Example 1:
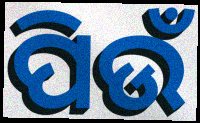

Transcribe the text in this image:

ପିଉଁ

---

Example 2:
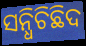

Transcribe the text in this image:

ସନ୍ଧିଚିଛିଦ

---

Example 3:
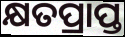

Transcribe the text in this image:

କ୍ଷତପ୍ରାପ୍ତ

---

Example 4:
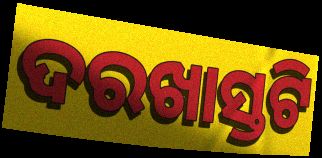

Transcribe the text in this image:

ଦରଖାସ୍ତଟି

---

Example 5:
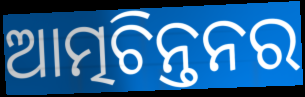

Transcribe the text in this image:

ଆତ୍ମଚିନ୍ତନର